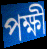
পক্ষী